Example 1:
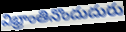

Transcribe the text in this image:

విభ్రాంతినొందుదురు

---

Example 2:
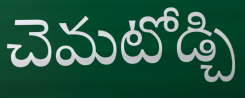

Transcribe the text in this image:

చెమటోడ్చి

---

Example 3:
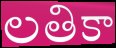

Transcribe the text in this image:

లతికా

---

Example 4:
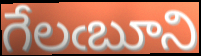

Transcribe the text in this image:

గేలఁబూని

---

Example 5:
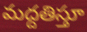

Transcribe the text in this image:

మద్దతిస్తూ